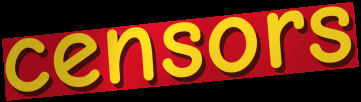
censors